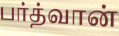
பர்த்வான்